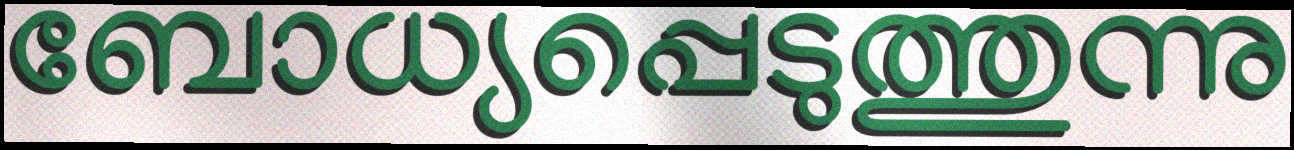
ബോധ്യപ്പെടുത്തുന്നു